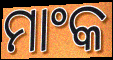
ମାଂକ